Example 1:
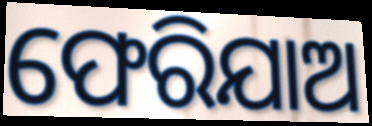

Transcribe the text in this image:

ଫେରିଯାଅ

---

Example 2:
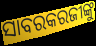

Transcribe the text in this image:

ସାବରକରଜୀଙ୍କୁ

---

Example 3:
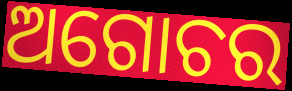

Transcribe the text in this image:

ଅଗୋଚର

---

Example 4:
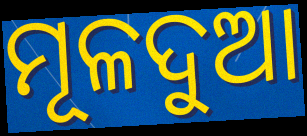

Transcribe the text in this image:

ମୂଳଦୁଆ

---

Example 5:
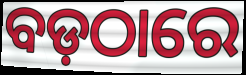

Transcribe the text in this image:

ବଡ଼ଠାରେ